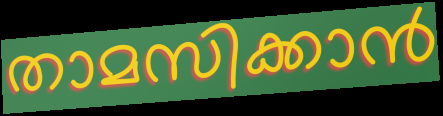
താമസിക്കാൻ